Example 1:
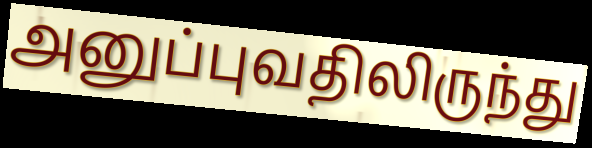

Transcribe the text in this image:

அனுப்புவதிலிருந்து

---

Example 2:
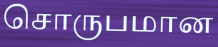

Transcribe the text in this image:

சொருபமான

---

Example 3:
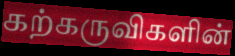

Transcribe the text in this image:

கற்கருவிகளின்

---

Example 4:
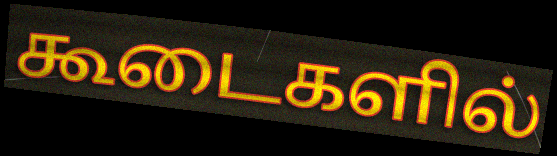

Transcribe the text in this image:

கூடைகளில்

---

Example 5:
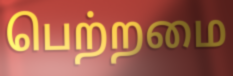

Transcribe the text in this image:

பெற்றமை